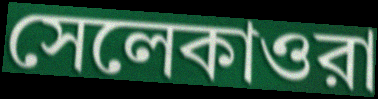
সেলেকাওরা